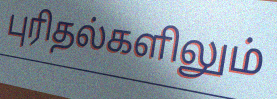
புரிதல்களிலும்